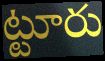
ట్టూరు